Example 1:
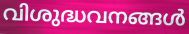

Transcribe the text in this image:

വിശുദ്ധവനങ്ങൾ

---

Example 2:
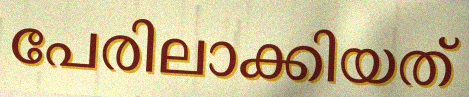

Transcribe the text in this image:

പേരിലാക്കിയത്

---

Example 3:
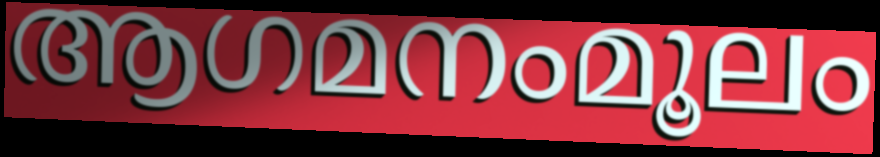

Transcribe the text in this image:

ആഗമനംമൂലം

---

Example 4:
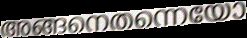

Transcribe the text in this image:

അങ്ങനെതന്നെയോ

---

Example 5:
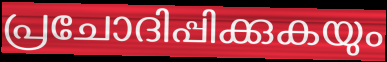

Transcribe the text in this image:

പ്രചോദിപ്പിക്കുകയും